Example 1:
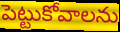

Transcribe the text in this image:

పెట్టుకోవాలను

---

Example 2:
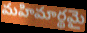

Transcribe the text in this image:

మహిమార్థమై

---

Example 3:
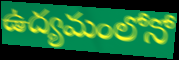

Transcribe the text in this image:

ఉద్యమంలోనో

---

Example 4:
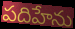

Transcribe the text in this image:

పదిహేను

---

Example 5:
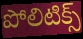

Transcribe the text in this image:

పోలిటిక్స్